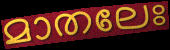
മാതലേഃ